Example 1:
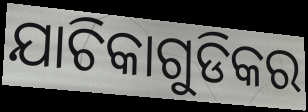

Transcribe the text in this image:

ଯାଚିକାଗୁଡିକର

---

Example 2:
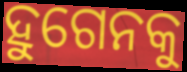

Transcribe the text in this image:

ହୁଗେନକୁ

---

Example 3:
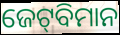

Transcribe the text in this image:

ଜେଟ୍‌ବିମାନ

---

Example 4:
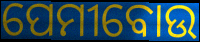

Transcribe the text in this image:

ପେମୀବୋଉ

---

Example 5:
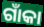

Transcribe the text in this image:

ଗାଁକା